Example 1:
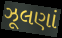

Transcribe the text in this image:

ઝૂલણાં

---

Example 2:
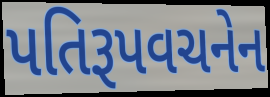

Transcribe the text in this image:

પતિરૂપવચનેન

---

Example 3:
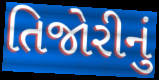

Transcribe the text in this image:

તિજોરીનું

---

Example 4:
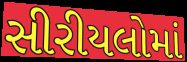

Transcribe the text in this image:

સીરીયલોમાં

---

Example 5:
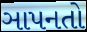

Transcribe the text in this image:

ઞાપનતો